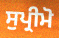
ਸੁਪ੍ਰੀਮੋ